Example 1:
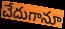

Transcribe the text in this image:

చేదుగానూ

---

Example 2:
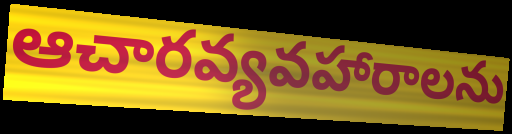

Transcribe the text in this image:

ఆచారవ్యవహారాలను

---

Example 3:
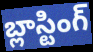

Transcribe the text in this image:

బ్లాస్టింగ్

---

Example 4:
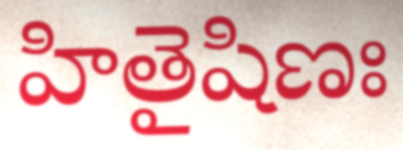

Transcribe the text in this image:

హితైషిణః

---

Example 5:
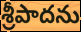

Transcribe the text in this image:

శ్రీపాదను